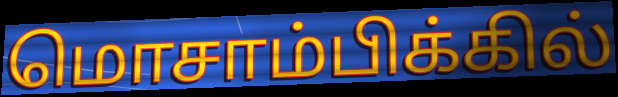
மொசாம்பிக்கில்